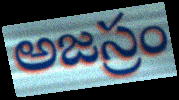
అజస్రం